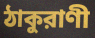
ঠাকুরাণী